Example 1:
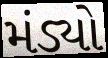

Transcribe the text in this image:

મંડ્યો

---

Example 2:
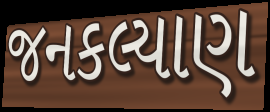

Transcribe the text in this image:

જનકલ્યાણ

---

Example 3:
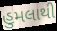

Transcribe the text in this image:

હુમલાથી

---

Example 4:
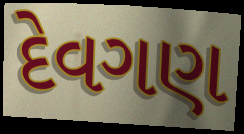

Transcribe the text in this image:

દેવગણ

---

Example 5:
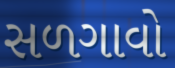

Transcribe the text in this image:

સળગાવો